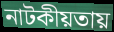
নাটকীয়তায়